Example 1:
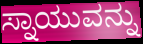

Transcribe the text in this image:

ಸ್ನಾಯುವನ್ನು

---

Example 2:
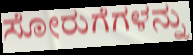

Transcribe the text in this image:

ಸೋರುಗೆಗಳನ್ನು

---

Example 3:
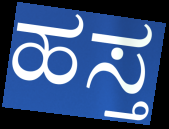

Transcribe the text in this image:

ಹಸ್ತ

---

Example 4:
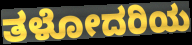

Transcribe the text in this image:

ತಳೋದರಿಯ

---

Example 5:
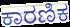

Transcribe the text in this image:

ಕಾರಣಿಕ